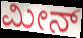
ಮೀನ್